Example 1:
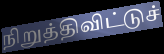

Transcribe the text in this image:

நிறுத்திவிட்டுச்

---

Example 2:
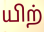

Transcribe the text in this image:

யிற்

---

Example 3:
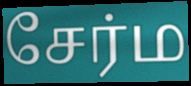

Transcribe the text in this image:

சேர்ம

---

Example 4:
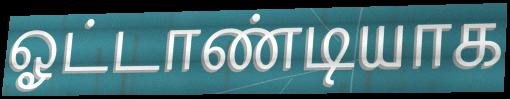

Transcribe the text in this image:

ஓட்டாண்டியாக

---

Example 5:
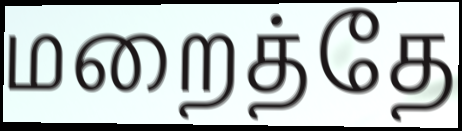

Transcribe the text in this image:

மறைத்தே